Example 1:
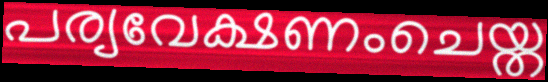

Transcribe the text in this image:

പര്യവേക്ഷണംചെയ്ത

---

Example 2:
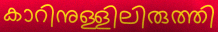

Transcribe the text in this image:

കാറിനുള്ളിലിരുത്തി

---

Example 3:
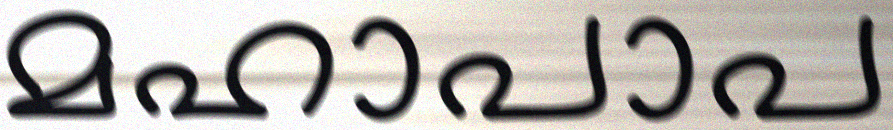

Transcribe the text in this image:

മഹാപാപ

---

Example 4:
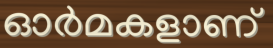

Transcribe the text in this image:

ഓർമകളാണ്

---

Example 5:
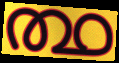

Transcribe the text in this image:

ത്ഥ